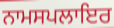
ਨਾਮਸਪਲਾਇਰ